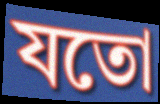
যতো